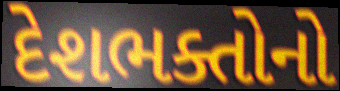
દેશભક્તોનો